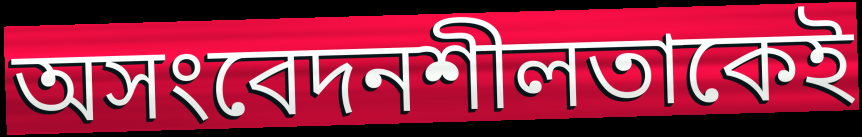
অসংবেদনশীলতাকেই